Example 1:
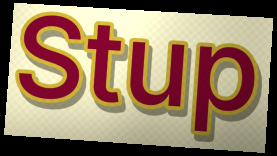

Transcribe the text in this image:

Stup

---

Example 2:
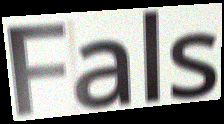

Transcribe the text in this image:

Fals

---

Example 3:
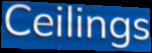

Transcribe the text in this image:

Ceilings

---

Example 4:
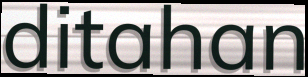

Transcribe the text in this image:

ditahan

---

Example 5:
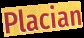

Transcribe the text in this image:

Placian